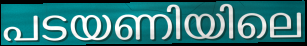
പടയണിയിലെ